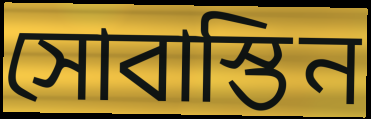
সোবাস্তিন